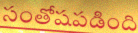
సంతోషపడింది